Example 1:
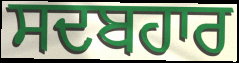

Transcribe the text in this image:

ਸਦਬਹਾਰ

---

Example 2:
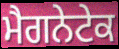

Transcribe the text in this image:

ਮੈਗਨੇਟੇਕ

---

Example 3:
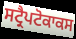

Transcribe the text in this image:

ਸਟ੍ਰੈਪਟੋਕਾਕਸ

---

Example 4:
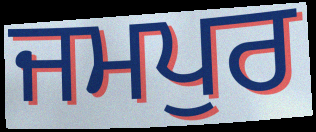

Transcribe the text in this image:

ਜਮਪੁਰ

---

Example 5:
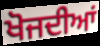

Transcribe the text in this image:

ਖੋਜਦੀਆਂ